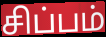
சிப்பம்